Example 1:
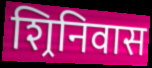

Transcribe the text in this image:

श्रिनिवास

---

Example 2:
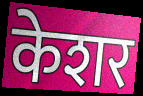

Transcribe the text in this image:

केशर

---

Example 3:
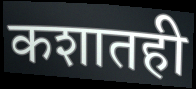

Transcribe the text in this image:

कशातही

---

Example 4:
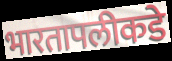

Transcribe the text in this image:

भारतापलीकडे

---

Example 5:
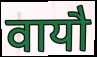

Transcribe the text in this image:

वायौ